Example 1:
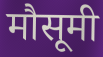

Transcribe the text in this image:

मौसूमी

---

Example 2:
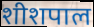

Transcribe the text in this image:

शीशपाल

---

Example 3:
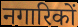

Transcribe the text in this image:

नगारिकों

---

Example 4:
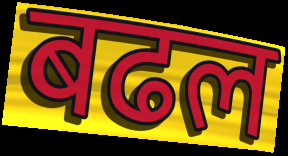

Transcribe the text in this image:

बढल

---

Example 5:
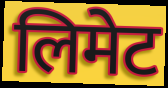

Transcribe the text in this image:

लिमेट